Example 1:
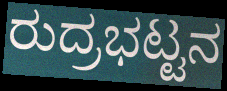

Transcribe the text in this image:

ರುದ್ರಭಟ್ಟನ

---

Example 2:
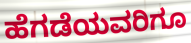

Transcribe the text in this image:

ಹೆಗಡೆಯವರಿಗೂ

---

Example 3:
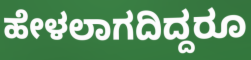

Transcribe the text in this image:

ಹೇಳಲಾಗದಿದ್ದರೂ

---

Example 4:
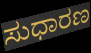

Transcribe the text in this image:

ಸುಧಾರಣ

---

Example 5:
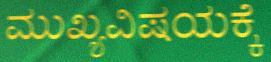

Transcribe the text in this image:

ಮುಖ್ಯವಿಷಯಕ್ಕೆ